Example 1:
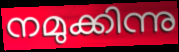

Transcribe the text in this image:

നമുക്കിന്നു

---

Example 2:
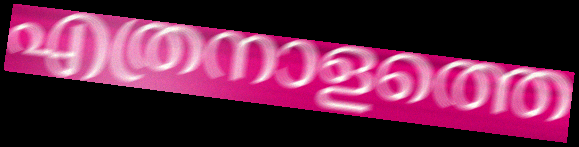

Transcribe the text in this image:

എത്രനാളത്തെ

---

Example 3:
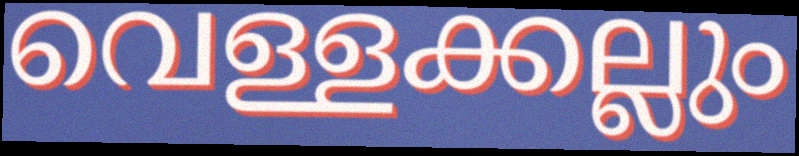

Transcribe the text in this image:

വെള്ളക്കല്ലും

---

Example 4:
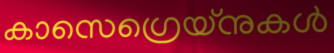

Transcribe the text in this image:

കാസെഗ്രെയ്നുകൾ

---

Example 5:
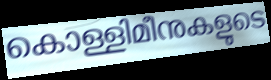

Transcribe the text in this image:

കൊള്ളിമീനുകളുടെ